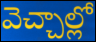
వెచ్చాల్లో